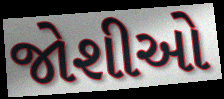
જોશીઓ